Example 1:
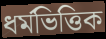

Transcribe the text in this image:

ধৰ্মভিত্তিক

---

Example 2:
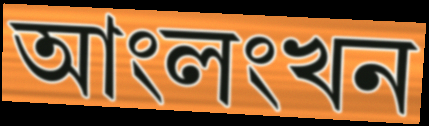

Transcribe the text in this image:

আংলংখন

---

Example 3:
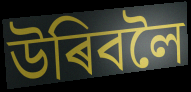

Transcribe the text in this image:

উৰিবলৈ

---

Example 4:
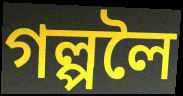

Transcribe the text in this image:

গল্পলৈ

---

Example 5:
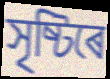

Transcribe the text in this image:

সৃষ্টিৰে